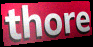
thore